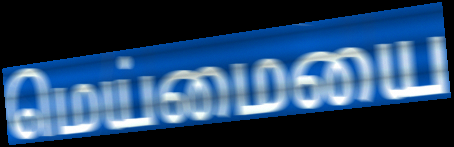
மெய்மையை